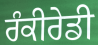
ਰੰਕੀਰੇਡੀ